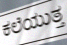
ಕಲೆಯುತ್ತ